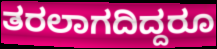
ತರಲಾಗದಿದ್ದರೂ